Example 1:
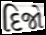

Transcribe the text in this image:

દિજો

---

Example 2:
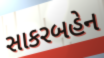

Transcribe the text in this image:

સાકરબહેન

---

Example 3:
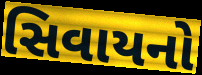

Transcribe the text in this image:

સિવાયનો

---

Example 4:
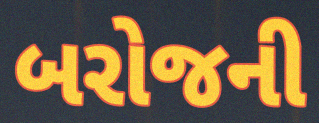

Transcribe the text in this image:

બરોજની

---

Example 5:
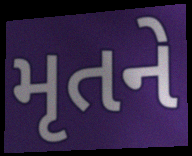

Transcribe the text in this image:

મૃતને